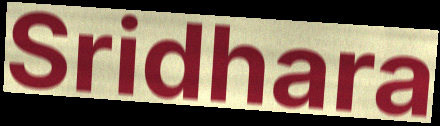
Sridhara